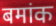
बमांक